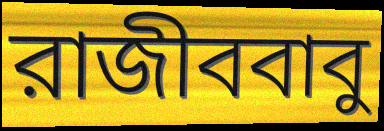
রাজীববাবু